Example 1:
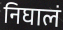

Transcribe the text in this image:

निघालं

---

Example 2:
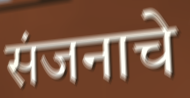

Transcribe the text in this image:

संजनाचे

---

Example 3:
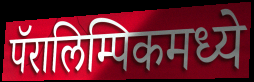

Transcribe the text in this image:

पॅरालिम्पिकमध्ये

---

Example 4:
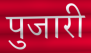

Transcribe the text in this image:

पुजारी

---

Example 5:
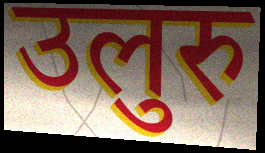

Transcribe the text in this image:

उलुरु